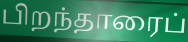
பிறந்தாரைப்